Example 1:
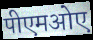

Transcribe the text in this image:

पीएमओए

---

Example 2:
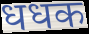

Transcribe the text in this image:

धधक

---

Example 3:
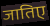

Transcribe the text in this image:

जातिए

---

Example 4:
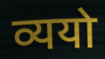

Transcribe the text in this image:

व्ययो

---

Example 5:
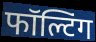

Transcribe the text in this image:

फॉल्टिंग